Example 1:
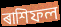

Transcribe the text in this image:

ৰাশিফল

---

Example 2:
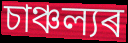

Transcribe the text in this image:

চাঞ্চল্যৰ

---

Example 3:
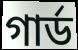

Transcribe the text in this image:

গাৰ্ড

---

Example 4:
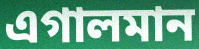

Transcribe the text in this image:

এগালমান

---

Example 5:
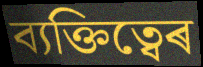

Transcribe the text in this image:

ব্যক্তিত্বেৰ